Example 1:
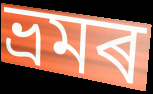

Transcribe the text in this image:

ভ্ৰমৰ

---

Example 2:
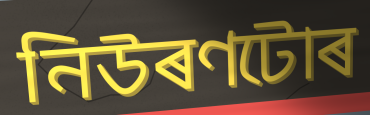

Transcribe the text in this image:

নিউৰণটোৰ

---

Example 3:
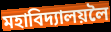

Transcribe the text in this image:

মহাবিদ্যালয়লৈ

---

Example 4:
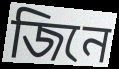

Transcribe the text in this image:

জিনে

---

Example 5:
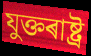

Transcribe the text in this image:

যুক্তৰাষ্ট্ৰ